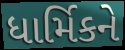
ધાર્મિકને